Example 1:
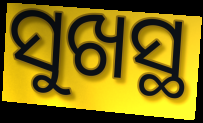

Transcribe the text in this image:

ସୁଖସ୍ଥ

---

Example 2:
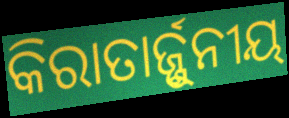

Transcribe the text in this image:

କିରାତାର୍ଜ୍ଜୁନୀୟ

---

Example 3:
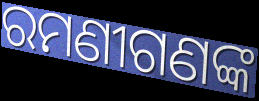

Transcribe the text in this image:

ରମଣୀଗଣଙ୍କ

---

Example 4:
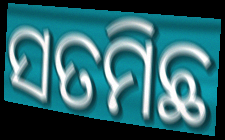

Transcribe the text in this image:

ସତମିଛ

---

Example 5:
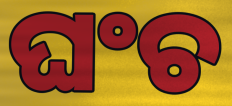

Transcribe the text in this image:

ଘଂଚ